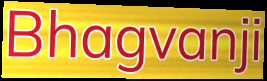
Bhagvanji